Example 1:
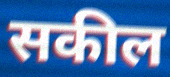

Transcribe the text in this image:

सकील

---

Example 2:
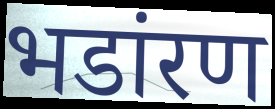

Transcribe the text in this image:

भडांरण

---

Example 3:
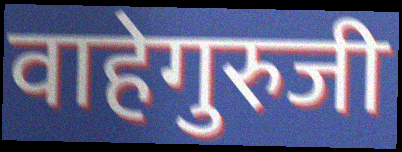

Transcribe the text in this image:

वाहेगुरुजी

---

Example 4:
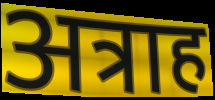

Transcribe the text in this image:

अत्राह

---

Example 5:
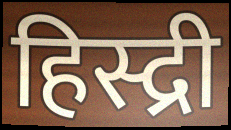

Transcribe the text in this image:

हिस्द्री